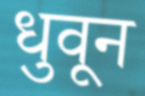
धुवून